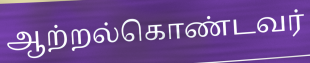
ஆற்றல்கொண்டவர்